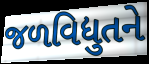
જળવિદ્યુતને